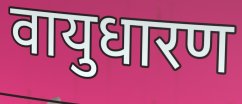
वायुधारण